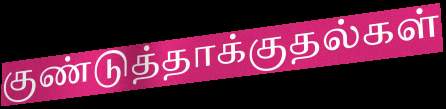
குண்டுத்தாக்குதல்கள்